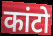
कांटो